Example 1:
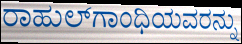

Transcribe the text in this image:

ರಾಹುಲ್‌ಗಾಂಧಿಯವರನ್ನು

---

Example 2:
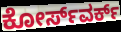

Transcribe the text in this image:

ಕೋರ್ಸ್‌ವರ್ಕ್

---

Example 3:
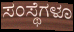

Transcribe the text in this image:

ಸಂಸ್ಥೆಗಳೂ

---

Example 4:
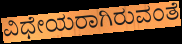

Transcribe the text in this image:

ವಿಧೇಯರಾಗಿರುವಂತೆ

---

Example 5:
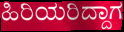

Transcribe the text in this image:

ಹಿರಿಯರಿದ್ದಾಗ